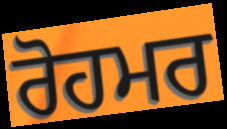
ਰੋਹਮਰ